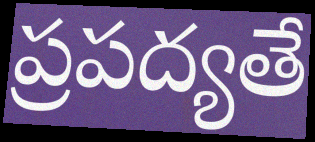
ప్రపద్యతే